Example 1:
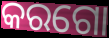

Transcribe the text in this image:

କରଗୋ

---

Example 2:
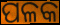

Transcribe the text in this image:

ପଳକ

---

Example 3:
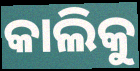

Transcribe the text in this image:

କାଲିକୁ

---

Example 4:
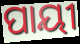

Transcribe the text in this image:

ପାୟୀ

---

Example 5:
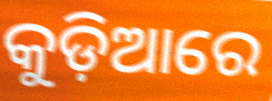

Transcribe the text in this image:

କୁଡ଼ିଆରେ